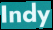
Indy